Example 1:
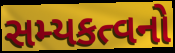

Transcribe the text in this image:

સમ્યકત્વનો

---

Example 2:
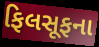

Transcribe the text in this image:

ફિલસૂફના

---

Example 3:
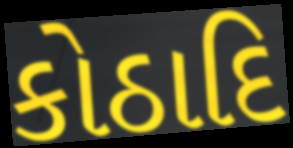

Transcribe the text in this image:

કોઠાદિ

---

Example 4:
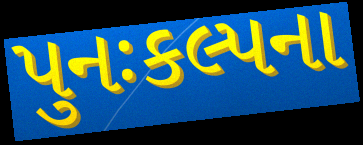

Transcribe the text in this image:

પુનઃકલ્પના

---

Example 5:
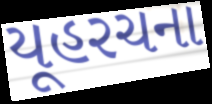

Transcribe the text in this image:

યૂહરચના